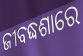
ଜୀବଦ୍ଧଶାରେ